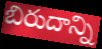
బిరుదాన్ని